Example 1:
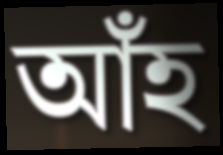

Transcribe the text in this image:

আঁহ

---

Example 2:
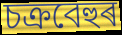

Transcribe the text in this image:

চক্ৰবেহুৰ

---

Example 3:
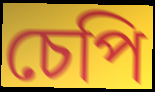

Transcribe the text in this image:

চেপি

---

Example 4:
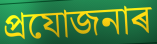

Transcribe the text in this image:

প্ৰযোজনাৰ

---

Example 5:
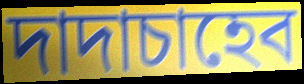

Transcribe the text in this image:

দাদাচাহেব